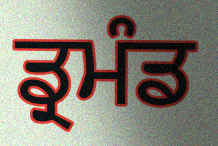
ਡ੍ਰਮੰਡ